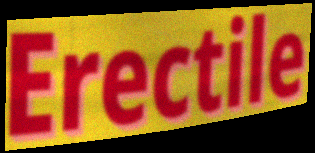
Erectile